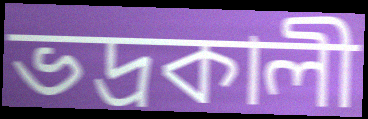
ভদ্রকালী